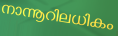
നാന്നൂറിലധികം